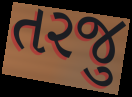
તરજુ